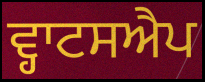
ਵ੍ਹਾਟਸਐਪ